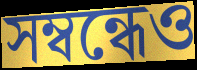
সম্বন্ধেও